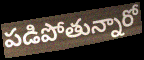
పడిపోతున్నారో